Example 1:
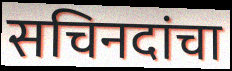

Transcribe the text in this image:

सचिनदांचा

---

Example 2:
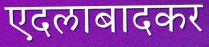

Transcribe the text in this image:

एदलाबादकर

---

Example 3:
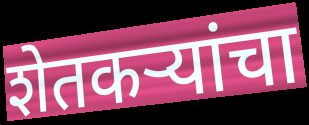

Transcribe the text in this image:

शेतकऱ्यांचा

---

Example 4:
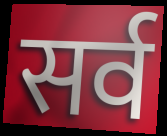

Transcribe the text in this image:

सर्व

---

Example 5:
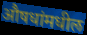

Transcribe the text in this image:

औषधांमधील